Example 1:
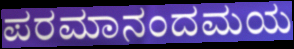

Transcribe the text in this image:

ಪರಮಾನಂದಮಯ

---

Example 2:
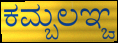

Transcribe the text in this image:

ಕಮ್ಬಲಞ್ಚ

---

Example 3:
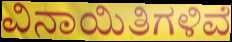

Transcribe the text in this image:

ವಿನಾಯಿತಿಗಳಿವೆ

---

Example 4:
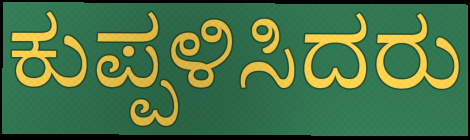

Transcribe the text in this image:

ಕುಪ್ಪಳಿಸಿದರು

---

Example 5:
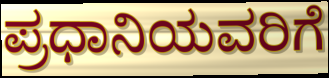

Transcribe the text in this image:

ಪ್ರಧಾನಿಯವರಿಗೆ